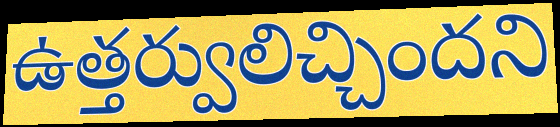
ఉత్తర్వులిచ్చిందని